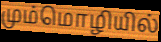
மும்மொழியில்